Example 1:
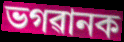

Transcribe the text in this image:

ভগৱানক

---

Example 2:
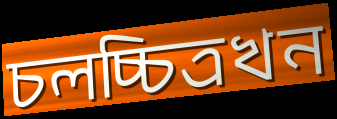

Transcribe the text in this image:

চলচ্চিত্ৰখন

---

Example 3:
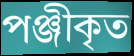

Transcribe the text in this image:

পঞ্জীকৃত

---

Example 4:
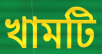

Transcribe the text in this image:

খামটি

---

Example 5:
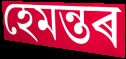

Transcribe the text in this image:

হেমন্তৰ